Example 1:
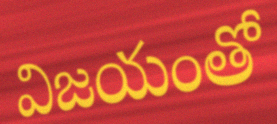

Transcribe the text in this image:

విజయంతో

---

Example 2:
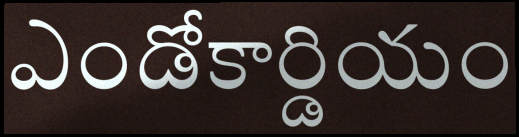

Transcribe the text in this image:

ఎండోకార్డియం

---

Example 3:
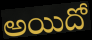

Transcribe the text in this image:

అయిదో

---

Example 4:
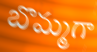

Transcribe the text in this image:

బొమ్మగా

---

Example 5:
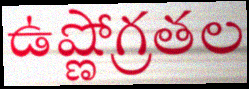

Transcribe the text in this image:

ఉష్ణోగ్రతల